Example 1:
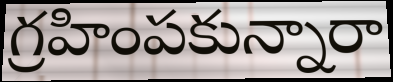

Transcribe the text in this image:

గ్రహింపకున్నారా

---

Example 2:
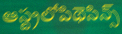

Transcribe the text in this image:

ఆస్ట్రలోపిథెసిన్స్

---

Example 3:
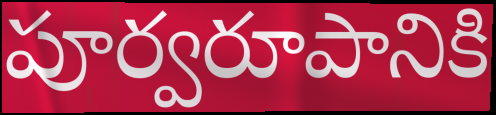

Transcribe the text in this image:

పూర్వరూపానికి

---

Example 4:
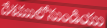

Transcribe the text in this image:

దేశములోనుండియు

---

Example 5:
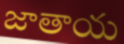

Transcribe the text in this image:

జాతాయ